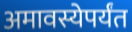
अमावस्येपर्यंत